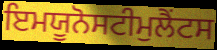
ਇਮਯੂਨੋਸਟੀਮੁਲੈਂਟਸ